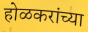
होळकरांच्या